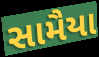
સામૈયા